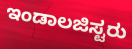
ಇಂಡಾಲಜಿಸ್ಟರು